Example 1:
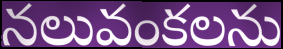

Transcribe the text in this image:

నలువంకలను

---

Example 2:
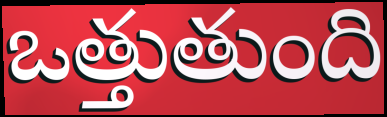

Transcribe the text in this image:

ఒత్తుతుంది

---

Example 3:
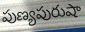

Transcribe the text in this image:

పుణ్యపురుషా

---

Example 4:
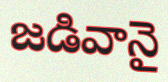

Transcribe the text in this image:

జడివానై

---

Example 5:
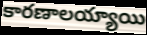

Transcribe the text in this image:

కారణాలయ్యాయి